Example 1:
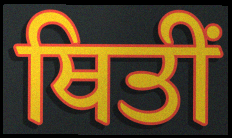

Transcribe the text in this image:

ਥਿਤੀਂ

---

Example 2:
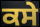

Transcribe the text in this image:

ਕਸੇ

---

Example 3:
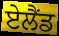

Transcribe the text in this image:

ਏਲੈਂਡ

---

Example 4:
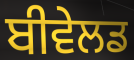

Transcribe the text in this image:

ਬੀਵੇਲਡ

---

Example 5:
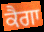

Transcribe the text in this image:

ਕੈਗਾ